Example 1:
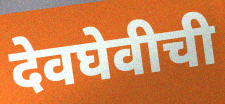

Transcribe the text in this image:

देवघेवीची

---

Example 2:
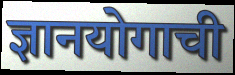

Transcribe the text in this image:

ज्ञानयोगाची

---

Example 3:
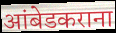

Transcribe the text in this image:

आंबेडकराना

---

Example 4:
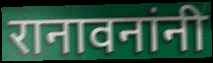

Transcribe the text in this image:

रानावनांनी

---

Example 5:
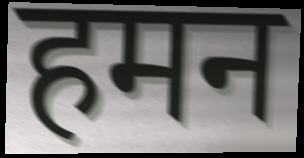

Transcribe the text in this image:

हमन